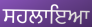
ਸਹਲਾਇਆ